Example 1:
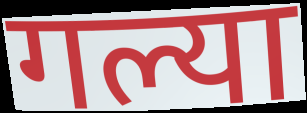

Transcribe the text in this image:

गल्या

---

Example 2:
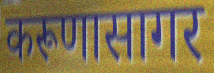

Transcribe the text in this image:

करूणासागर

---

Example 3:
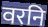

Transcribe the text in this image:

वरनि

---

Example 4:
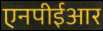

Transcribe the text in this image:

एनपीईआर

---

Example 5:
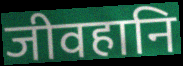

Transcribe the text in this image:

जीवहानि